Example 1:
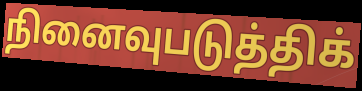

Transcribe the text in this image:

நினைவுபடுத்திக்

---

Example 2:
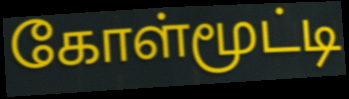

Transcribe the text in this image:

கோள்மூட்டி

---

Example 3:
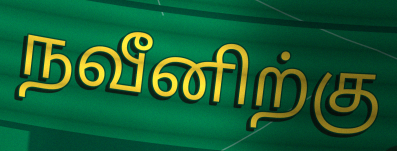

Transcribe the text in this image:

நவீனிற்கு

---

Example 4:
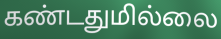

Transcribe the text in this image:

கண்டதுமில்லை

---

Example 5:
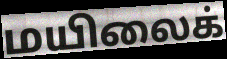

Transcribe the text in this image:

மயிலைக்